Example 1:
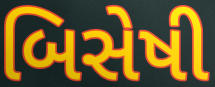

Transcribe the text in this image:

બિસેષી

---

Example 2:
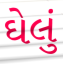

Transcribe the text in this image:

ઘેલું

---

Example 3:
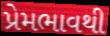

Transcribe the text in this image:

પ્રેમભાવથી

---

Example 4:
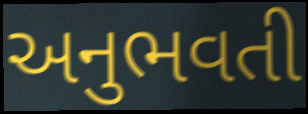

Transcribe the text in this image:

અનુભવતી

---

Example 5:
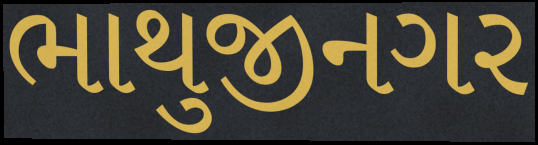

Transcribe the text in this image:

ભાથુજીનગર